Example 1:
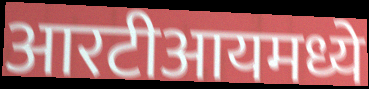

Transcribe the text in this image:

आरटीआयमध्ये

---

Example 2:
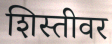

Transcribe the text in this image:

शिस्तीवर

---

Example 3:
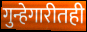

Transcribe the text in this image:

गुन्हेगारीतही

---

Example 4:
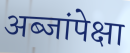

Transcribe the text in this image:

अब्जांपेक्षा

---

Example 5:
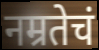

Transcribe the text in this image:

नम्रतेचं